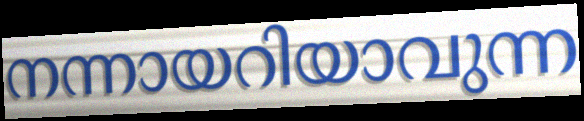
നന്നായറിയാവുന്ന